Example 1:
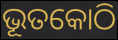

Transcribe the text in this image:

ଭୂତକୋଠି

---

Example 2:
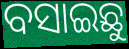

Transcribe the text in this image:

ବସାଇଛୁ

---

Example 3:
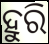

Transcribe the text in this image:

ହୁରି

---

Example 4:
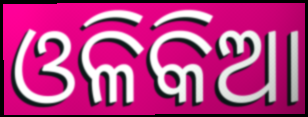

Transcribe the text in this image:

ଓଳିକିଆ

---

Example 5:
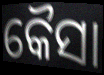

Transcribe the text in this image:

କୈସା